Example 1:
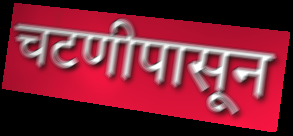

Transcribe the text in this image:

चटणीपासून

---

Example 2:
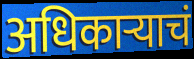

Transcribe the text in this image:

अधिकाऱ्याचं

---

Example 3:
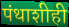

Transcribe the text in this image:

पंथाशीही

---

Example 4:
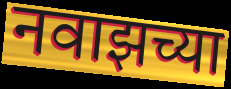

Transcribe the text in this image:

नवाझच्या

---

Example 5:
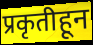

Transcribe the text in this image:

प्रकृतीहून